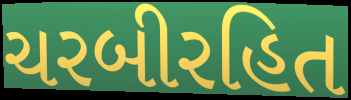
ચરબીરહિત